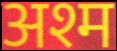
अश्म